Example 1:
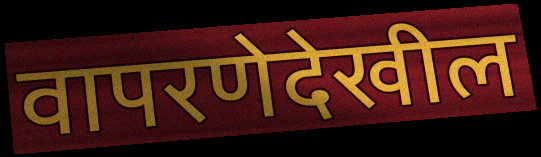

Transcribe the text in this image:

वापरणेदेखील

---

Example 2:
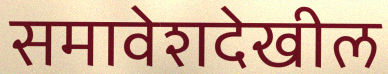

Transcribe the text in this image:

समावेशदेखील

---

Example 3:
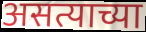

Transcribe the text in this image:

असत्याच्या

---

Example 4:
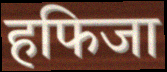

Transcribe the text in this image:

हफिजा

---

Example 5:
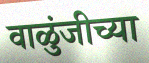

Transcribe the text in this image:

वाळुंजीच्या